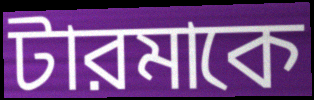
টারমাকে